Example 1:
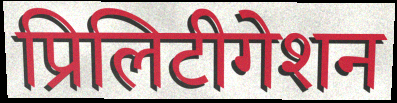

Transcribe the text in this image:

प्रिलिटीगेशन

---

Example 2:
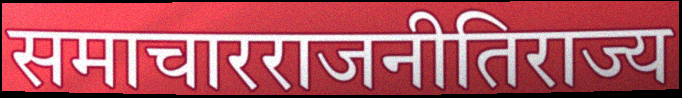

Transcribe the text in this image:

समाचारराजनीतिराज्य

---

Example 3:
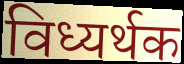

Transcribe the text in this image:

विध्यर्थक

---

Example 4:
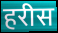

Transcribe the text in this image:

हरीस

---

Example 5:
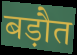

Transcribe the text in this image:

बड़ौत